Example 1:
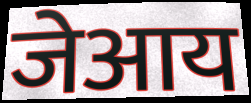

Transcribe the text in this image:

जेआय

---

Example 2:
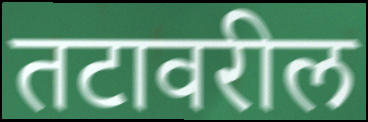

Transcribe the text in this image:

तटावरील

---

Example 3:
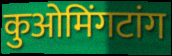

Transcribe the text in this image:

कुओमिंगटांग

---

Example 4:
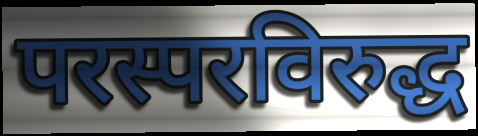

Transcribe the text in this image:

परस्परविरुद्ध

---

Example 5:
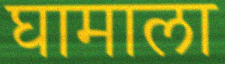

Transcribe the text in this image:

घामाला